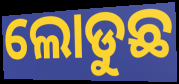
ଲୋଡୁଛ